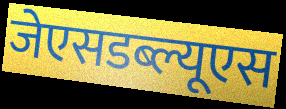
जेएसडब्ल्यूएस